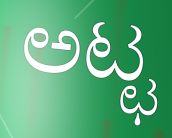
ಅಟ್ಟ